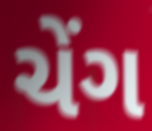
ચેંગ